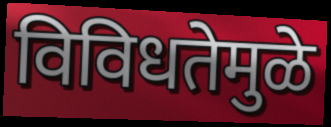
विविधतेमुळे